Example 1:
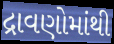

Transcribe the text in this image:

દ્રાવણોમાંથી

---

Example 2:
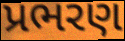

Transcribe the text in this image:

પ્રભરણ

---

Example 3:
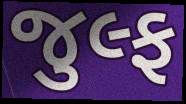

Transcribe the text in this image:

જુલ્ફ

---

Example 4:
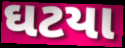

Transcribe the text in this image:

ઘટયા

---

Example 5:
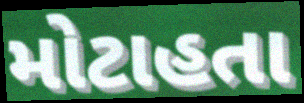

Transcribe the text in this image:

મોટાહતા